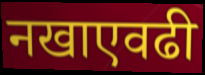
नखाएवढी